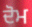
ਦੋਮ